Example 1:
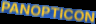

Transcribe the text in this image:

PANOPTICON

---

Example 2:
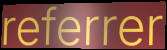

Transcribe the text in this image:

referrer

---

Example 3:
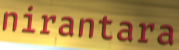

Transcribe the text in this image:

nirantara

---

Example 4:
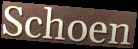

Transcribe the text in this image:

Schoen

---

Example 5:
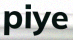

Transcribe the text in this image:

piye